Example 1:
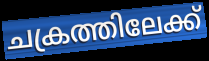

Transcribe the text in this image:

ചക്രത്തിലേക്ക്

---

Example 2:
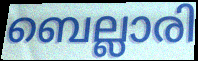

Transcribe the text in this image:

ബെല്ലാരി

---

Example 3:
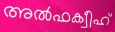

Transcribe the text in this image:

അൽഫക്വീഹ്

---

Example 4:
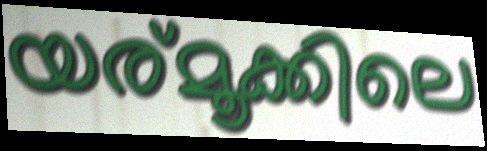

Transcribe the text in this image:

യര്മൂക്കിലെ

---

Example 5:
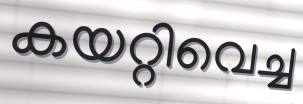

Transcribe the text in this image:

കയറ്റിവെച്ച